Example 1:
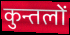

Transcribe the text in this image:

कुन्तलों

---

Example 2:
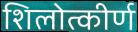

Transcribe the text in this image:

शिलोत्कीर्ण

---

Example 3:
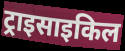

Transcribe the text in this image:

ट्राइसाइकिल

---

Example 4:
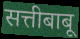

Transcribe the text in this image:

सत्तीबाबू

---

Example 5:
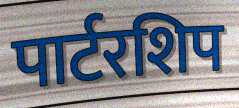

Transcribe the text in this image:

पार्टरशिप